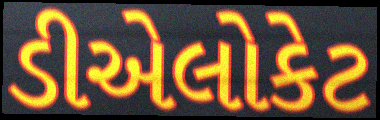
ડીએલોકેટ